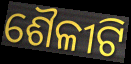
ଶୈଳୀଟି